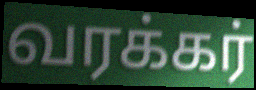
வரக்கர்